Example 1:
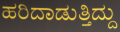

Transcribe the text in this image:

ಹರಿದಾಡುತ್ತಿದ್ದು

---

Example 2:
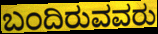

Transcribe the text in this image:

ಬಂದಿರುವವರು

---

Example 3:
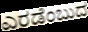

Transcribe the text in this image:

ಎರಡೆಂಬುದ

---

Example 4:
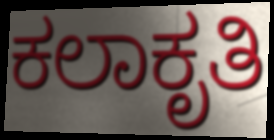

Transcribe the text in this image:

ಕಲಾಕೃತಿ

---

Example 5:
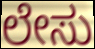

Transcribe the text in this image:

ಲೇಸು